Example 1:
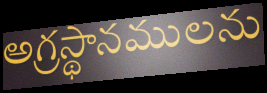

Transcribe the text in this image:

అగ్రస్థానములను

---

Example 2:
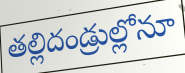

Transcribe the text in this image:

తల్లిదండ్రుల్లోనూ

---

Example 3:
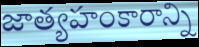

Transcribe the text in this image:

జాత్యహంకారాన్ని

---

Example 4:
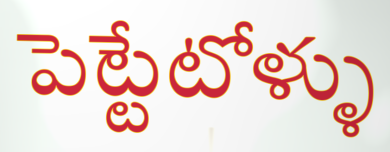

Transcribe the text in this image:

పెట్టేటోళ్ళు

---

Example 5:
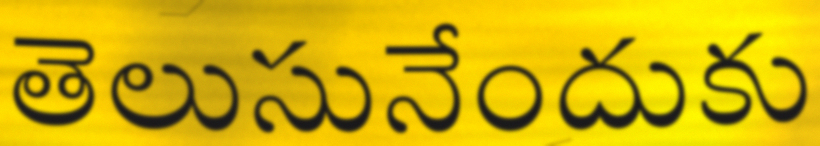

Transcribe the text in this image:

తెలుసునేందుకు